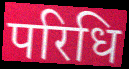
परिधि